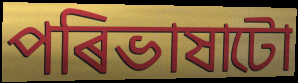
পৰিভাষাটো